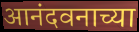
आनंदवनाच्या